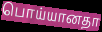
பொய்யானதா